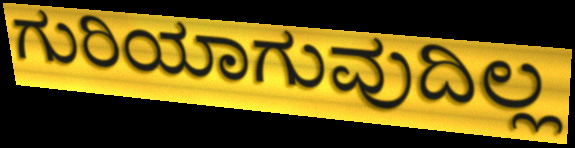
ಗುರಿಯಾಗುವುದಿಲ್ಲ